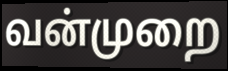
வன்முறை